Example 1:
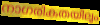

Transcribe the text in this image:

നാഗരികതയിലും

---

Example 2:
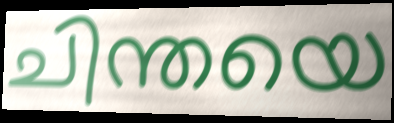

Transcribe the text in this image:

ചിന്തയെ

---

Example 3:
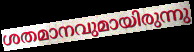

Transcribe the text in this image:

ശതമാനവുമായിരുന്നു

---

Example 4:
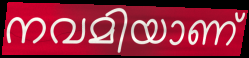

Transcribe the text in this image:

നവമിയാണ്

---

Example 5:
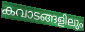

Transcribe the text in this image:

കവാടങ്ങളിലും